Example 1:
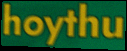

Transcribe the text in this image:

hoythu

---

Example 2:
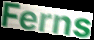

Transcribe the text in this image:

Ferns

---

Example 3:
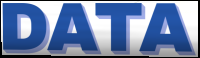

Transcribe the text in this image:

DATA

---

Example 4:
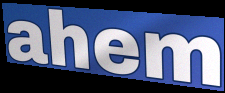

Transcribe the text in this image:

ahem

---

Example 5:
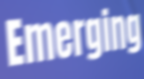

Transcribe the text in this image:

Emerging